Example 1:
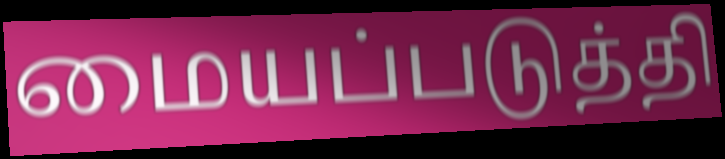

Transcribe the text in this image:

மையப்படுத்தி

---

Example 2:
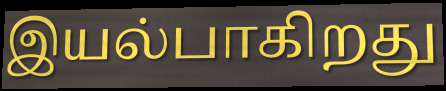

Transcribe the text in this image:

இயல்பாகிறது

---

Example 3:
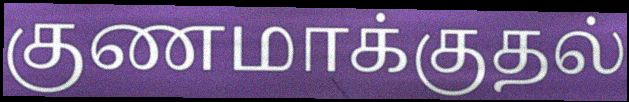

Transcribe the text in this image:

குணமாக்குதல்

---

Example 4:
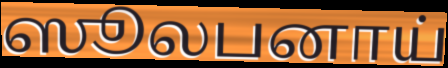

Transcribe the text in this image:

ஸூலபனாய்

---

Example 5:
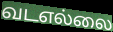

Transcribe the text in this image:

வடஎல்லை